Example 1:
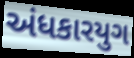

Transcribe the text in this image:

અંધકારયુગ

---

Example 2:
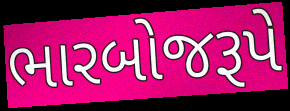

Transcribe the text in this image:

ભારબોજરૂપે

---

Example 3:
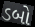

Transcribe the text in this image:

ડબો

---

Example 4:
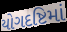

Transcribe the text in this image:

યોગદષ્ટિમાં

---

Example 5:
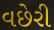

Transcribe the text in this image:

વછેરી